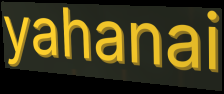
yahanai